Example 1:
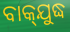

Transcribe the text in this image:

ବାକ୍‌ଯୁଦ୍ଧ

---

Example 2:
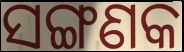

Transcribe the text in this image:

ସଙ୍ଗଣକ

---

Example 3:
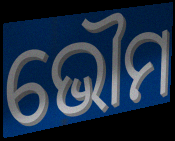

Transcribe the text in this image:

ଭୌମ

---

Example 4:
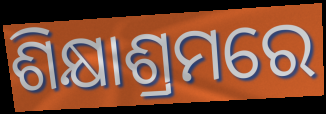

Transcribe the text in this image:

ଶିକ୍ଷାଶ୍ରମରେ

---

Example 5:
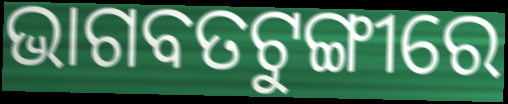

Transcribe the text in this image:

ଭାଗବତଟୁଙ୍ଗୀରେ